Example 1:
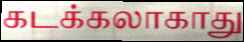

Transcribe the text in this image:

கடக்கலாகாது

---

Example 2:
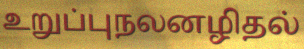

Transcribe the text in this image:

உறுப்புநலனழிதல்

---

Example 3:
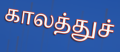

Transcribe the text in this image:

காலத்துச்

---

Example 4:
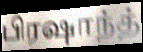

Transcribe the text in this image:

பிரஷாந்த்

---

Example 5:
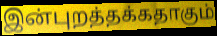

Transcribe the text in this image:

இன்புறத்தக்கதாகும்